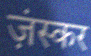
ज़ंस्कर